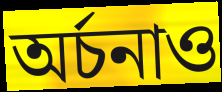
অর্চনাও